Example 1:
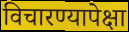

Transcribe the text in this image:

विचारण्यापेक्षा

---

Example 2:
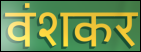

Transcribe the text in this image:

वंशकर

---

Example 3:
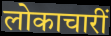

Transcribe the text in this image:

लोकाचारीं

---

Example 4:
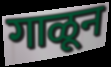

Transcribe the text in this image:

गाळून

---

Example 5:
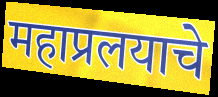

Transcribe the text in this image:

महाप्रलयाचे